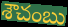
శౌచంబు